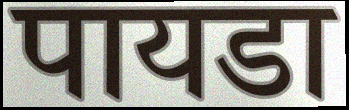
पायडा